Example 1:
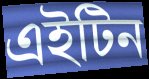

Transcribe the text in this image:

এইটিন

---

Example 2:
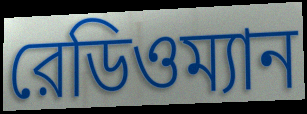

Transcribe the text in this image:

রেডিওম্যান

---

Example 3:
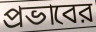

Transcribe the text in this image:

প্রভাবের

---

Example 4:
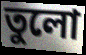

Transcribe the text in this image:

তুলো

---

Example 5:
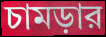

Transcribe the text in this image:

চামড়ার